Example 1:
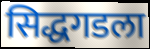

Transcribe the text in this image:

सिद्धगडला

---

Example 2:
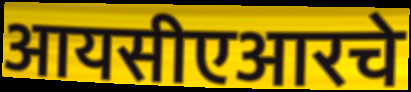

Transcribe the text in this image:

आयसीएआरचे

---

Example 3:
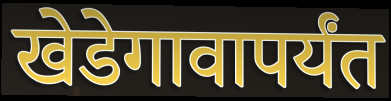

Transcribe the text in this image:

खेडेगावापर्यंत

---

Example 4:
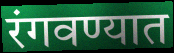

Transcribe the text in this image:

रंगवण्यात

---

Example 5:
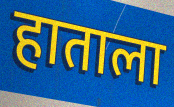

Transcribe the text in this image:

हाताला